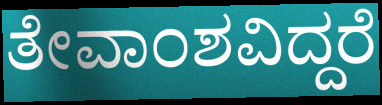
ತೇವಾಂಶವಿದ್ದರೆ